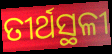
ତୀର୍ଥସ୍ଥଳୀ